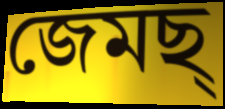
জেমছ্